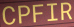
CPFIR